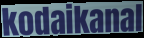
kodaikanal